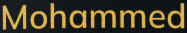
Mohammed